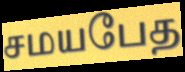
சமயபேத